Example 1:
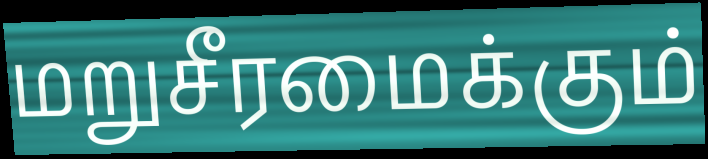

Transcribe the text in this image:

மறுசீரமைக்கும்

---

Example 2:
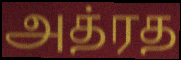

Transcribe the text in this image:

அத்ரத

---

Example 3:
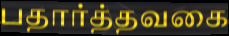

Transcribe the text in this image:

பதார்த்தவகை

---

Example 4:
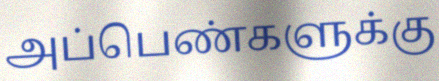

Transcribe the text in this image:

அப்பெண்களுக்கு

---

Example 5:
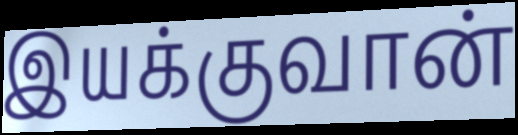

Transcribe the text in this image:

இயக்குவான்